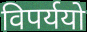
विपर्ययो